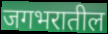
जगभरातील